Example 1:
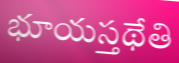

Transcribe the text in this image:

భూయస్తథేతి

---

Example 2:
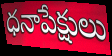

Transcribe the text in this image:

ధనాపేక్షులు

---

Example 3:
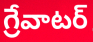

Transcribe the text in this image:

గ్రేవాటర్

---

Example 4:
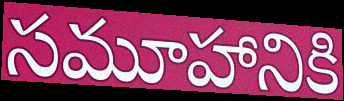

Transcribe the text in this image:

సమూహానికి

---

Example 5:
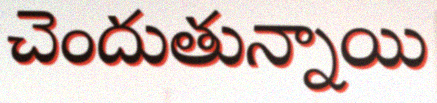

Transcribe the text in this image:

చెందుతున్నాయి